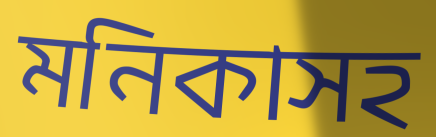
মনিকাসহ